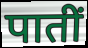
पातीं